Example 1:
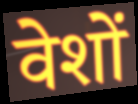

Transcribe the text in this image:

वेशों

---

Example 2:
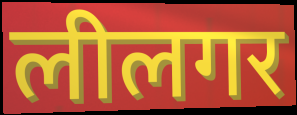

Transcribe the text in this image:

लीलगर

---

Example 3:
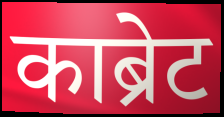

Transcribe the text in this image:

काब्रेट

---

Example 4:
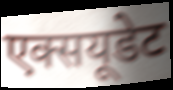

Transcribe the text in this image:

एक्सयूडेट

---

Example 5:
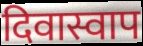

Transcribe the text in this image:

दिवास्वाप